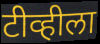
टीव्हीला